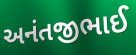
અનંતજીભાઈ